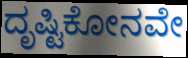
ದೃಷ್ಟಿಕೋನವೇ